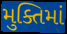
મુક્તિમાં